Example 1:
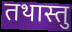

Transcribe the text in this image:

तथास्तु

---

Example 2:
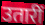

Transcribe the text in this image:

उतारीं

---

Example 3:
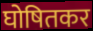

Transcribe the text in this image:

घोषितकर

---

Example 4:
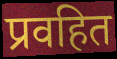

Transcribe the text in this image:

प्रवहित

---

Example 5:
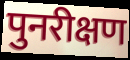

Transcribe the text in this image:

पुनरीक्षण